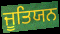
ਜੂਤਿਯਨ